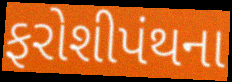
ફરોશીપંથના